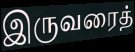
இருவரைத்